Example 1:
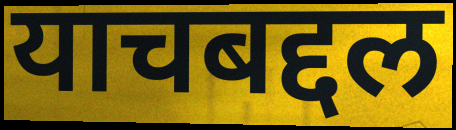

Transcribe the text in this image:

याचबद्दल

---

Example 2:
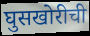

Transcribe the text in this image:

घुसखोरीची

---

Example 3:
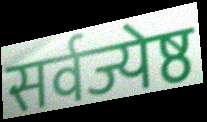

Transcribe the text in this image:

सर्वज्येष्ठ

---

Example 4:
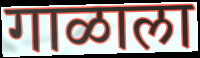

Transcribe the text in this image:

गाळाला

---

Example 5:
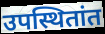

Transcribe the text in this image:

उपस्थितांत